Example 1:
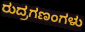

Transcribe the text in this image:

ರುದ್ರಗಣಂಗಳು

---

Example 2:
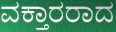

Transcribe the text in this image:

ವಕ್ತಾರರಾದ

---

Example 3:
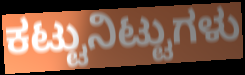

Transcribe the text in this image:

ಕಟ್ಟುನಿಟ್ಟುಗಳು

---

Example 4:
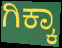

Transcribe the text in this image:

ಗಿಕ್ಕಾ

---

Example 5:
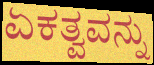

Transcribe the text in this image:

ಏಕತ್ವವನ್ನು